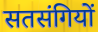
सतसंगियों